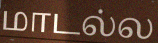
மாடல்ல